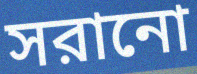
সরানো